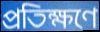
প্রতিক্ষণে